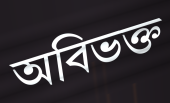
অবিভক্ত